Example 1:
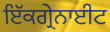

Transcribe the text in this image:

ਇੱਕਗ੍ਰੇਨਾਈਟ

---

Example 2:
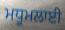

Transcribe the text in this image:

ਮਧੂਮਲਾਈ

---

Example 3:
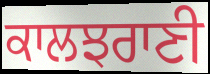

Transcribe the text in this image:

ਕਾਲਝਰਾਣੀ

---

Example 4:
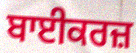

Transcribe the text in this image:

ਬਾਈਕਰਜ਼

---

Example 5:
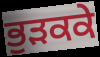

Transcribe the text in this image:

ਭੁੜਕਕੇ